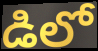
డిలో